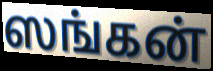
ஸங்கன்